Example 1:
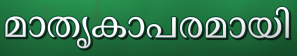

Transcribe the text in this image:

മാതൃകാപരമായി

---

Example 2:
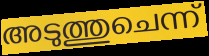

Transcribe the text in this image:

അടുത്തുചെന്ന്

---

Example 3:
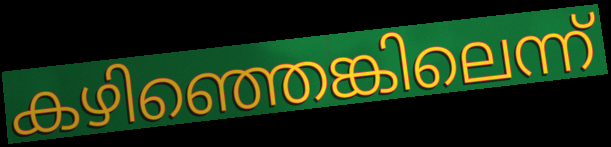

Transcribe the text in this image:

കഴിഞ്ഞെങ്കിലെന്ന്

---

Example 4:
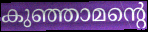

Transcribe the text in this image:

കുഞ്ഞാമന്റെ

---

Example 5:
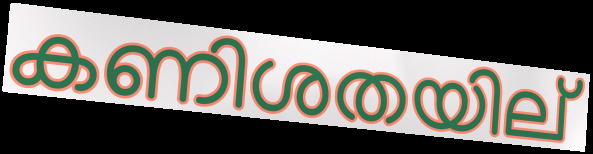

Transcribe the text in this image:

കണിശതയില്